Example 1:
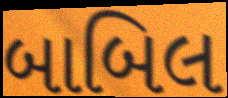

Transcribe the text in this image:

બાબિલ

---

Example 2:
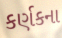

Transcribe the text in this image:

કર્ણકના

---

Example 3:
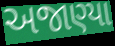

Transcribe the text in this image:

અજાણ્યા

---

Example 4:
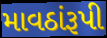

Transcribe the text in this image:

માવઠાંરૂપી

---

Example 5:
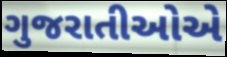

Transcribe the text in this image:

ગુજરાતીઓએ